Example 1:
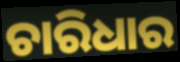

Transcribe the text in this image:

ଚାରିଧାର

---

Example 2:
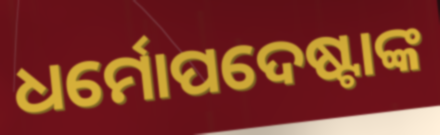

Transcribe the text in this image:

ଧର୍ମୋପଦେଷ୍ଟାଙ୍କ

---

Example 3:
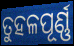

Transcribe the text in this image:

ତୁହଳପୂର୍ଣ୍ଣ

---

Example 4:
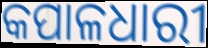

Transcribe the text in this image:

କପାଳଧାରୀ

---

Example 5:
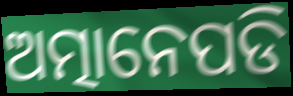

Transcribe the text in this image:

ଅତ୍ମାନେପଡି